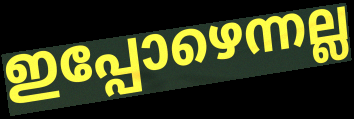
ഇപ്പോഴെന്നല്ല